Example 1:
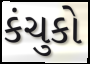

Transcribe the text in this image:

કંચુકો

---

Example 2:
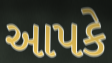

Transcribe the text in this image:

આપકે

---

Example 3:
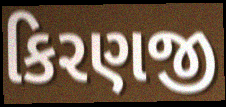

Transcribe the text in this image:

કિરણજી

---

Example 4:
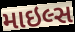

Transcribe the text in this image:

માઇલ્સ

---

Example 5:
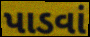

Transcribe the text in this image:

પાડવાં